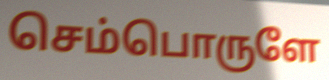
செம்பொருளே